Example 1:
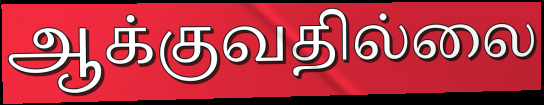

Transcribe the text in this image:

ஆக்குவதில்லை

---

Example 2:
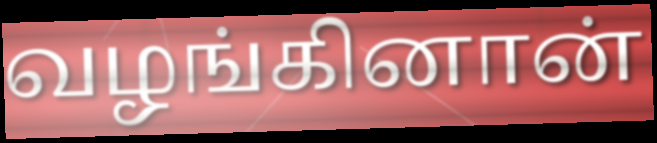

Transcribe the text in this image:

வழங்கினான்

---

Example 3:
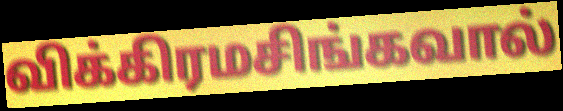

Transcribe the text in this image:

விக்கிரமசிங்கவால்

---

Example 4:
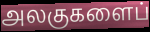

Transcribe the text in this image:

அலகுகளைப்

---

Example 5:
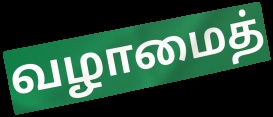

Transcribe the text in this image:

வழாமைத்